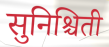
सुनिश्चिती